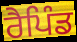
ਰੈਪਿੰਡ